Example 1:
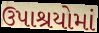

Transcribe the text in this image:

ઉપાશ્રયોમાં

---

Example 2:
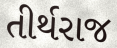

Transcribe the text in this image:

તીર્થરાજ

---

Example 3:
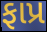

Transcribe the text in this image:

ફાપ્ર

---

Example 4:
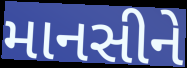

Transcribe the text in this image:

માનસીને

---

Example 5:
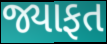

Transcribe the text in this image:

જ્યાફત